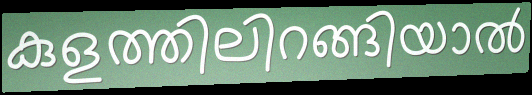
കുളത്തിലിറങ്ങിയാൽ